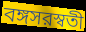
বঙ্গসরস্বতী